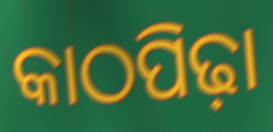
କାଠପିଢ଼ା